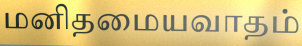
மனிதமையவாதம்